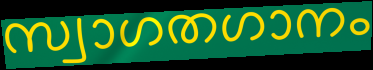
സ്വാഗതഗാനം